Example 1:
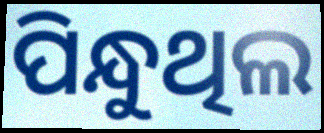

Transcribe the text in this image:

ପିନ୍ଧୁଥିଲ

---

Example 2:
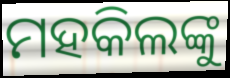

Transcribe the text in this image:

ମହକିଲଙ୍କୁ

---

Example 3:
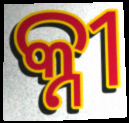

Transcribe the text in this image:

କ୍ନୀ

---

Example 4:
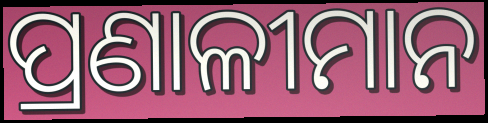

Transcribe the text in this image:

ପ୍ରଣାଳୀମାନ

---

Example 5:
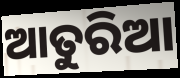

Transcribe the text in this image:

ଆତୁରିଆ